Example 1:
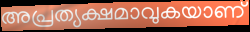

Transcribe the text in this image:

അപ്രത്യക്ഷമാവുകയാണ്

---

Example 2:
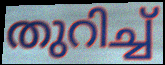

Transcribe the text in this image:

തുറിച്ച്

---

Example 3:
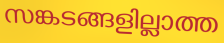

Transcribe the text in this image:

സങ്കടങ്ങളില്ലാത്ത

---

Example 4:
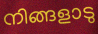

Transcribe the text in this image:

നിങ്ങളാടു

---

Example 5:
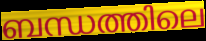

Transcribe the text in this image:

ബന്ധത്തിലെ